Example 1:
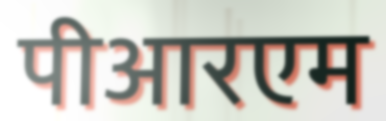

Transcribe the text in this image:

पीआरएम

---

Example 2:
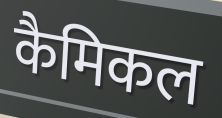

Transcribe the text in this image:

कैमिकल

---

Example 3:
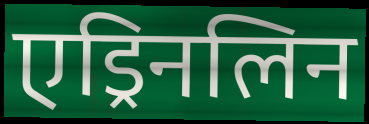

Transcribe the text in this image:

एड्रिनलिन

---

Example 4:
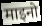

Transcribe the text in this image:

माइनो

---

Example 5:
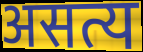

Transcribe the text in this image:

असत्य